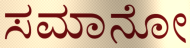
ಸಮಾನೋ